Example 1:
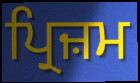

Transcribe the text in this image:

ਪ੍ਰਿਜ਼ਮ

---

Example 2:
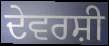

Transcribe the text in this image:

ਦੇਵਰਸ਼ੀ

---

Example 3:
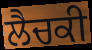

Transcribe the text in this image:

ਲੈਚਕੀ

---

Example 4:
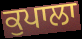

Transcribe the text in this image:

ਕੁਪਾਲਾ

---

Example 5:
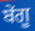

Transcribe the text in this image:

ਬੇਂਗੂ